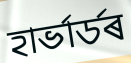
হাৰ্ভাৰ্ডৰ